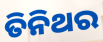
ତିନିଥର